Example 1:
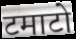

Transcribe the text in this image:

टमाटो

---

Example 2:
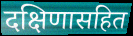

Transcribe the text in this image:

दक्षिणासहित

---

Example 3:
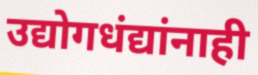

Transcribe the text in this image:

उद्योगधंद्यांनाही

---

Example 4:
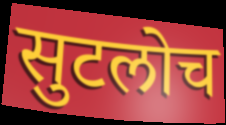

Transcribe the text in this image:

सुटलोच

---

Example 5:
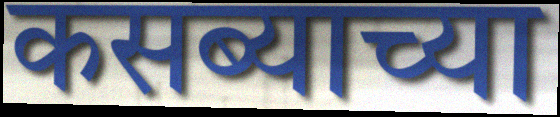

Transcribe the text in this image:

कसब्याच्या